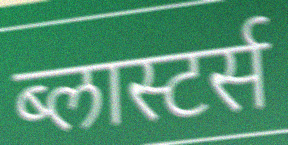
ब्लास्टर्स